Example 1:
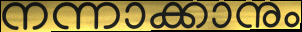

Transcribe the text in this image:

നന്നാക്കാനും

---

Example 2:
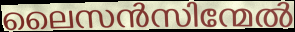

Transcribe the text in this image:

ലൈസൻസിന്മേൽ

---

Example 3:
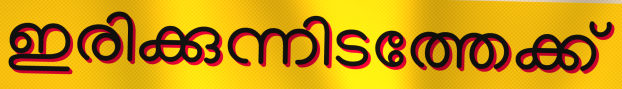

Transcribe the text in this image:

ഇരിക്കുന്നിടത്തേക്ക്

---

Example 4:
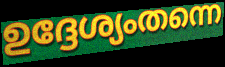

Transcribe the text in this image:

ഉദ്ദേശ്യംതന്നെ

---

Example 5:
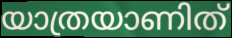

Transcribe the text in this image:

യാത്രയാണിത്